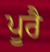
ਪੂਰੈ